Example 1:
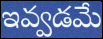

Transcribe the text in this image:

ఇవ్వడమే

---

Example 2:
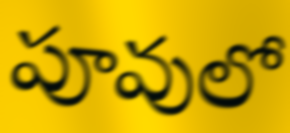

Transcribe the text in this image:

పూవులో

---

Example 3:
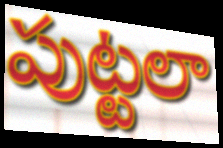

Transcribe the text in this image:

పుట్టలా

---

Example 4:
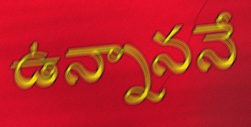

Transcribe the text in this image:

ఉన్నాననే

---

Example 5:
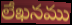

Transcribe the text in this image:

లేఖనము